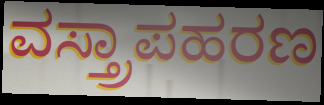
ವಸ್ತ್ರಾಪಹರಣ